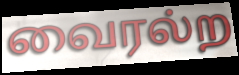
வைரல்ற